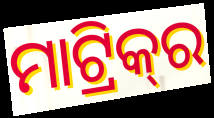
ମାଟ୍ରିକ୍‌ର